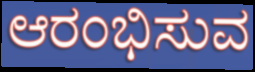
ಆರಂಭಿಸುವ